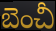
బెంచీ